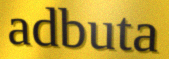
adbuta